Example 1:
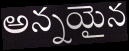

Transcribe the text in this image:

అన్నయైన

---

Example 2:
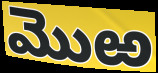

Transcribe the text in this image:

మొఱ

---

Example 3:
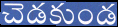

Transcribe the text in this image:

చెడకుండ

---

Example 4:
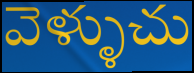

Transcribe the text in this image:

వెళ్ళుచు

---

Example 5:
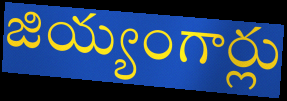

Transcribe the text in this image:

జియ్యంగార్లు